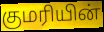
குமரியின்